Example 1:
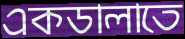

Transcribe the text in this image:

একডালাতে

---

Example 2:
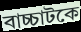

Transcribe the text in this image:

বাচ্চাটকে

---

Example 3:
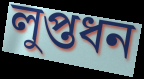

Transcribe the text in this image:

লুপ্তধন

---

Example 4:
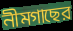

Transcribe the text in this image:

নীমগাছের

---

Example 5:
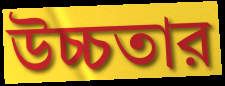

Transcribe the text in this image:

উচ্চতার